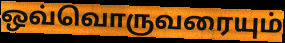
ஒவ்வொருவரையும்